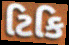
ટિકિ